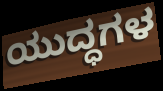
ಯುದ್ಧಗಳ